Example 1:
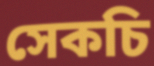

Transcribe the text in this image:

সেকচি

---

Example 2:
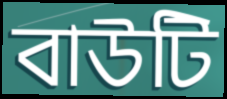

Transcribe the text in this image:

বাউটি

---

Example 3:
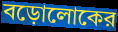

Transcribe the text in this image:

বড়োলোকের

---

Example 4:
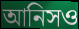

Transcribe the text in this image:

আনিসও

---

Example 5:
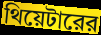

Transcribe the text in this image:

থিয়েটারের